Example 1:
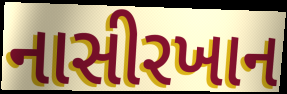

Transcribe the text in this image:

નાસીરખાન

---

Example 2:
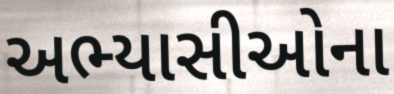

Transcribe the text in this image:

અભ્યાસીઓના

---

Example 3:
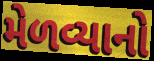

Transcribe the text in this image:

મેળવ્યાનો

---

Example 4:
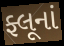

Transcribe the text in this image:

ફ્લૂનાં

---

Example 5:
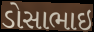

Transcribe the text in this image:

ડોસાભાઇ